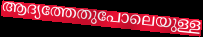
ആദ്യത്തേതുപോലെയുള്ള